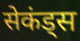
सेकंड्स